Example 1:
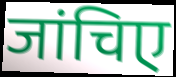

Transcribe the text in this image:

जांचिए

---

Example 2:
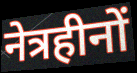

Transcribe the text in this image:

नेत्रहीनों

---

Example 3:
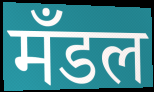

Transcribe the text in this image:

मँडल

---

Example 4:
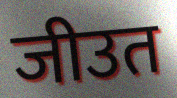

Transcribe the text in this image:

जीउत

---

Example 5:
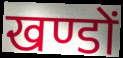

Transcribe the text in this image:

खण्डों